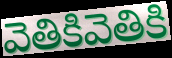
వెతికివెతికి